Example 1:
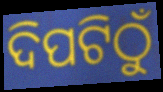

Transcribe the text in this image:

ଦିପଟିଠୁଁ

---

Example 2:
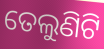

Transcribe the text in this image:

ତେଲୁଣିଟି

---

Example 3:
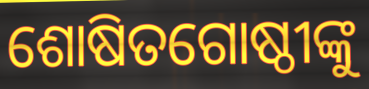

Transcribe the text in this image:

ଶୋଷିତଗୋଷ୍ଠୀଙ୍କୁ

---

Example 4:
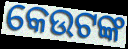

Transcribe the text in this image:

କେଉଟଙ୍କ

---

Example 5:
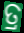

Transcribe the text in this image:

ତ୍ର